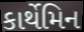
કાર્થેમિન